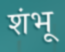
शंभू